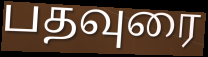
பதவுரை